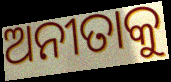
ଅନୀତାକୁ